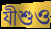
যীশুও